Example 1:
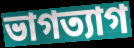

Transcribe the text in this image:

ভাগত্যাগ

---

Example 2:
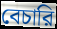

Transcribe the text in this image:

বেচারি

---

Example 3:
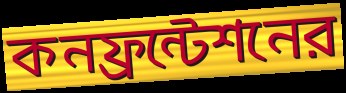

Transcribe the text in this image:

কনফ্রন্টেশনের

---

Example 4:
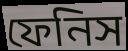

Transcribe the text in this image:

ফেনিস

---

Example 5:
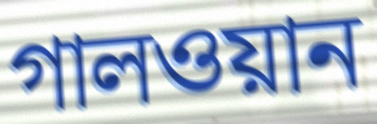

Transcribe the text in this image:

গালওয়ান